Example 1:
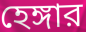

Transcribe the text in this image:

হেঙ্গার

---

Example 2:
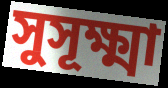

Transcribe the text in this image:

সুসূক্ষ্মা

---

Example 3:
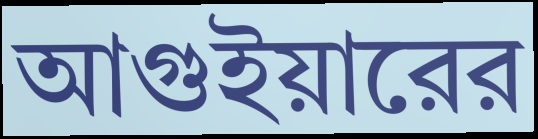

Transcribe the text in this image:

আগুইয়ারের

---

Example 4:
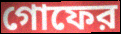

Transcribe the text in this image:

গোফের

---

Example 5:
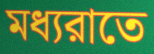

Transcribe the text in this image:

মধ্যরাতে